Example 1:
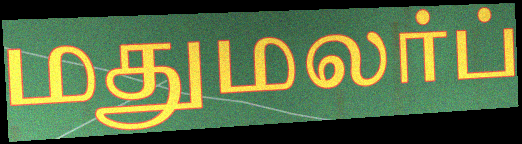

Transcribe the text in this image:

மதுமலர்ப்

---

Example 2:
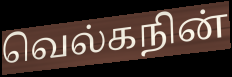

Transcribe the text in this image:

வெல்கநின்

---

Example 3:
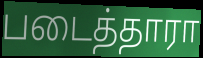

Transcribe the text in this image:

படைத்தாரா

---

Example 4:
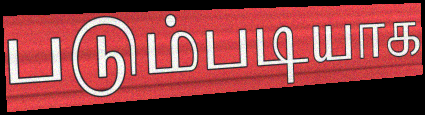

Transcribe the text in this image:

படும்படியாக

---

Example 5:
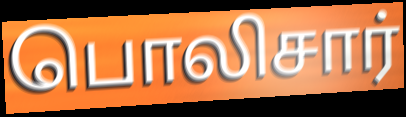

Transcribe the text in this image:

பொலிசார்